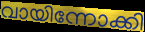
വായിന്നോക്കി